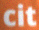
cit